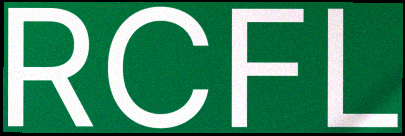
RCFL